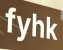
fyhk